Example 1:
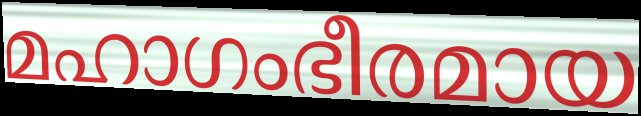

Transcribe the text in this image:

മഹാഗംഭീരമായ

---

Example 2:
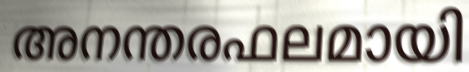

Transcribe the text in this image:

അനന്തരഫലമായി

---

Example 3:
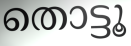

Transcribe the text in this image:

തൊട്ടൂ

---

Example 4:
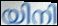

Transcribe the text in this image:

യിനി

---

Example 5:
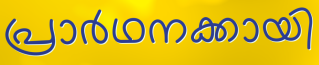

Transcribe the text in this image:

പ്രാർഥനക്കായി